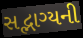
સદ્ભાગ્યની